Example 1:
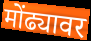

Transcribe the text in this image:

मोंढ्यावर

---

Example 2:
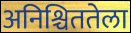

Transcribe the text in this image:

अनिश्चिततेला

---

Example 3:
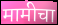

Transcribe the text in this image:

मामीचा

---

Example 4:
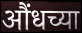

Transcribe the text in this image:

औंधच्या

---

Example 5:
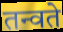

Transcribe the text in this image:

तन्वते